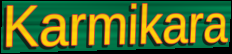
Karmikara